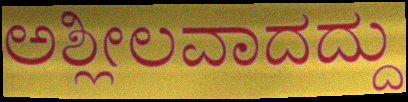
ಅಶ್ಲೀಲವಾದದ್ದು